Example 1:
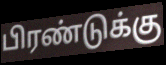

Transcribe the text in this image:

பிரண்டுக்கு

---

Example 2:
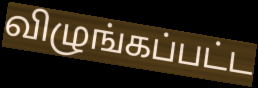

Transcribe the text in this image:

விழுங்கப்பட்ட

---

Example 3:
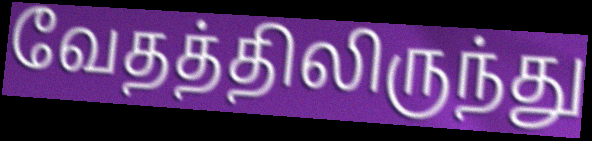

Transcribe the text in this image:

வேதத்திலிருந்து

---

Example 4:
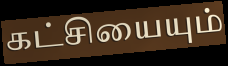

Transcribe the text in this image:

கட்சியையும்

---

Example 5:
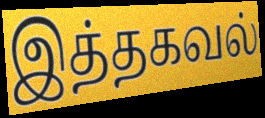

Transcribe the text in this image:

இத்தகவல்